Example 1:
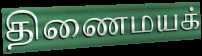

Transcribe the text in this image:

திணைமயக்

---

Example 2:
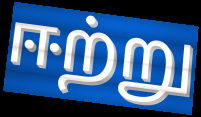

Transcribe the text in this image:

ஈற்று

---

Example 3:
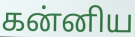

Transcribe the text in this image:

கன்னிய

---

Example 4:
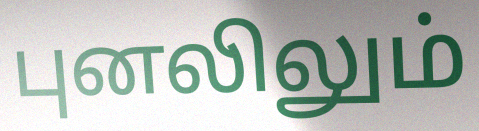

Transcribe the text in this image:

புனலிலும்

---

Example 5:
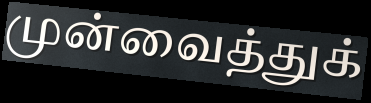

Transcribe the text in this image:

முன்வைத்துக்